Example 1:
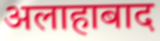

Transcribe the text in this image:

अलाहाबाद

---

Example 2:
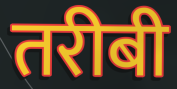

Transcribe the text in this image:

तरीबी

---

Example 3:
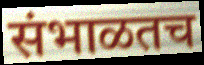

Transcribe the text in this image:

संभाळतच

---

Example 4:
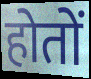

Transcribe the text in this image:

होतों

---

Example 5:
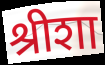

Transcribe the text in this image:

श्रीशा